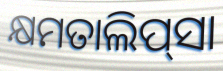
କ୍ଷମତାଲିପ୍‍ସା